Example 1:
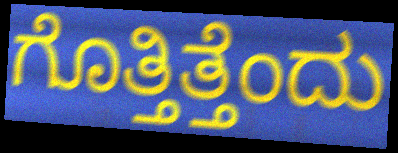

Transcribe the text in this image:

ಗೊತ್ತಿತ್ತೆಂದು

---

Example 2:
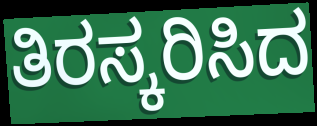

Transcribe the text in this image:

ತಿರಸ್ಕರಿಸಿದ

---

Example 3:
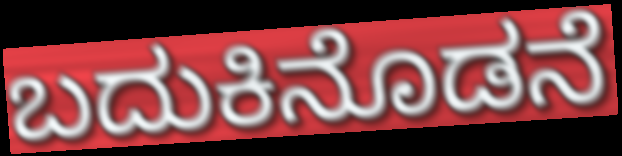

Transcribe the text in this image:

ಬದುಕಿನೊಡನೆ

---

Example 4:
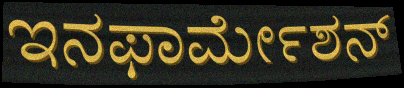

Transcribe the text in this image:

ಇನಫಾರ್ಮೇಶನ್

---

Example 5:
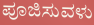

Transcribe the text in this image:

ಪೂಜಿಸುವಳು